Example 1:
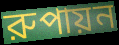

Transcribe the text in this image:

রুপায়ন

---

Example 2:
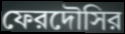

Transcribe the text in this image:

ফেরদৌসির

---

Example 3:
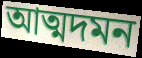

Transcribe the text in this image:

আত্মদমন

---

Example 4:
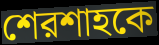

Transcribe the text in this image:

শেরশাহকে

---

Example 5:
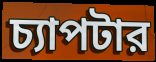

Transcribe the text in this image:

চ্যাপটার